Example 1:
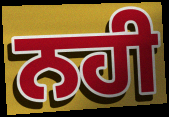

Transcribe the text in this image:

ਨਹੀ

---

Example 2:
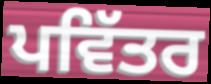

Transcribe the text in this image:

ਪਵਿੱਤਰ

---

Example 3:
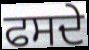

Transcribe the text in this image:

ਫਸਦੇ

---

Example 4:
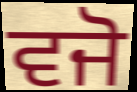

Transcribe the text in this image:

ਵਜੋ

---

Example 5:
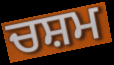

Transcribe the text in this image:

ਚਸ਼ਮ